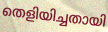
തെളിയിച്ചതായി